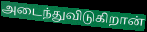
அடைந்துவிடுகிறான்